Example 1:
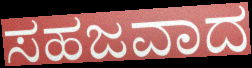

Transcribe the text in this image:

ಸಹಜವಾದ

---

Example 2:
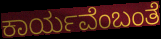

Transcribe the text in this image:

ಕಾರ್ಯವೆಂಬಂತೆ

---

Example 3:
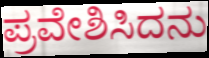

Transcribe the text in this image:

ಪ್ರವೇಶಿಸಿದನು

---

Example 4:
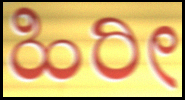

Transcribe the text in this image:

ಹಿರೀ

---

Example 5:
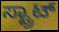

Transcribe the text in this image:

ಸ್ಟ್ರಾಟ್